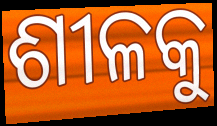
ଶୀଳକୁ